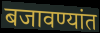
बजावण्यांत